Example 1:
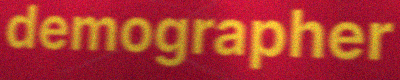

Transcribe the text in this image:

demographer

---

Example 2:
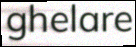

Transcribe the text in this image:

ghelare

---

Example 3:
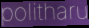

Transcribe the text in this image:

politharu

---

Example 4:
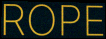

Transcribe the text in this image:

ROPE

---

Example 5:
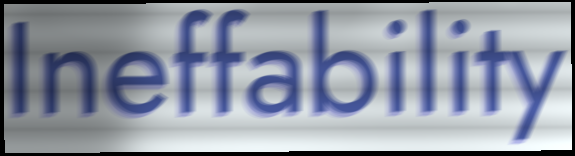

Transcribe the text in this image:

Ineffability